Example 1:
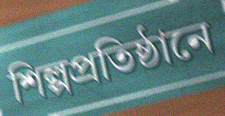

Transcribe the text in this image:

শিল্পপ্রতিষ্ঠানে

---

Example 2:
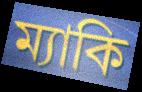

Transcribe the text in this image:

ম্যাকি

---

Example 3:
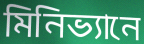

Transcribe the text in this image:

মিনিভ্যানে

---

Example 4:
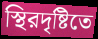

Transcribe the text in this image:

স্থিরদৃষ্টিতে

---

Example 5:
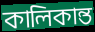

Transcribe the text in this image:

কালিকান্ত